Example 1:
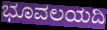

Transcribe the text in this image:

ಭೂವಲಯದಿ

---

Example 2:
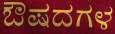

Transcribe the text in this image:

ಔಷದಗಳ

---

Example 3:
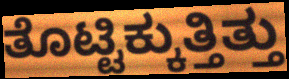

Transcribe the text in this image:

ತೊಟ್ಟಿಕ್ಕುತ್ತಿತ್ತು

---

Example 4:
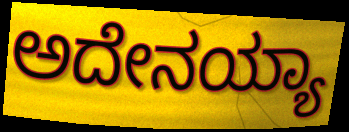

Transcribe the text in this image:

ಅದೇನಯ್ಯಾ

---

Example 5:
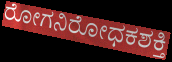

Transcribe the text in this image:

ರೋಗನಿರೋಧಕಶಕ್ತಿ